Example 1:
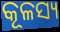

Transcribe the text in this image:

କୂଳସ୍ଯ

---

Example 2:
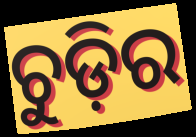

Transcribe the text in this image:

ଚୁଡ଼ିର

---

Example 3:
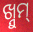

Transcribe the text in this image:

ଖ୍ନୁମ୍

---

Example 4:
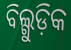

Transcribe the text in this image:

ବିଲ୍ଗୁଡ଼ିକ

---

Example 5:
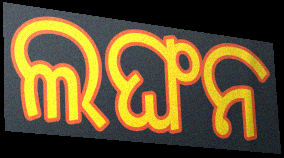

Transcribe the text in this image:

ଲଙ୍ଘନ